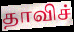
தாவிச்